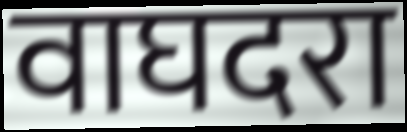
वाघदरा